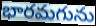
భారమగును